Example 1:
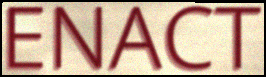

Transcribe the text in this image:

ENACT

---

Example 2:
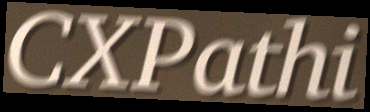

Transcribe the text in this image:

CXPathi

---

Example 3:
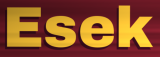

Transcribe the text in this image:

Esek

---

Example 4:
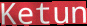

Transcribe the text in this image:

Ketun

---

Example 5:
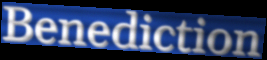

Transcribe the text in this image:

Benediction